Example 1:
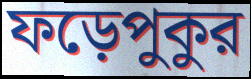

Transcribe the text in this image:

ফড়েপুকুর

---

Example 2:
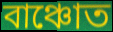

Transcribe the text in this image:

বাঞ্চোত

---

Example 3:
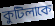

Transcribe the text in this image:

কুটিলাকে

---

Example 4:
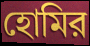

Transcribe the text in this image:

হোমির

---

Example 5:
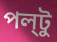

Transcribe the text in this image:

পল্‌টু